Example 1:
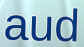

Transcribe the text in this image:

aud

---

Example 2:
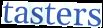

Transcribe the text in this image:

tasters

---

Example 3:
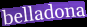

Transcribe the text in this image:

belladona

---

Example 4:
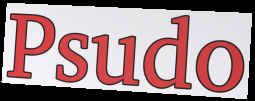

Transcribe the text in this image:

Psudo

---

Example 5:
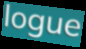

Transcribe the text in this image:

logue